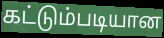
கட்டும்படியான